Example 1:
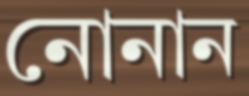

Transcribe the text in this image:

নোনান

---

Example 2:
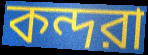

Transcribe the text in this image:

কন্দরা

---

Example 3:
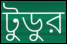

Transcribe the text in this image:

টুডুর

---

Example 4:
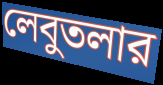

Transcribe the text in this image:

লেবুতলার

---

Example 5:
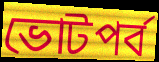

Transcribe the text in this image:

ভোটপর্ব